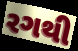
રગથી